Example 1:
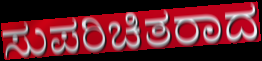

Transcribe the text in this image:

ಸುಪರಿಚಿತರಾದ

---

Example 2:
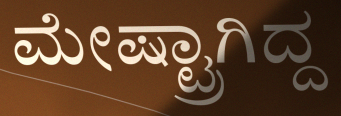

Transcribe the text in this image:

ಮೇಷ್ಟ್ರಾಗಿದ್ದ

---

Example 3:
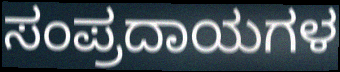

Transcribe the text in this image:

ಸಂಪ್ರದಾಯಗಳ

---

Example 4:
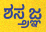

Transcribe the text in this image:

ಶಸ್ತ್ರಜ್ಞ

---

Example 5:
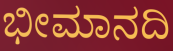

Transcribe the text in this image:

ಭೀಮಾನದಿ